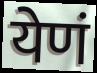
येणं